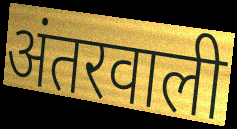
अंतरवाली